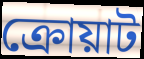
ক্রোয়াট